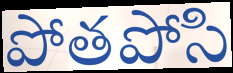
పోతపోసి